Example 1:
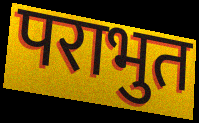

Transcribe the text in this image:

पराभुत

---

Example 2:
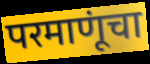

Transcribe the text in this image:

परमाणूंचा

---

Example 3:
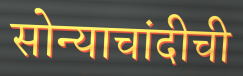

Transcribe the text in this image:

सोन्याचांदीची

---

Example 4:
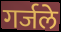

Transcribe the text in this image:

गर्जले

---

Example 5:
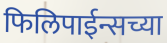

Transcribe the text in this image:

फिलिपाईन्सच्या